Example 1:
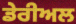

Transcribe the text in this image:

ਡੇਰੀਅਲ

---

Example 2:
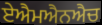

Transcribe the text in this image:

ਏਐਮਐਨਐਚ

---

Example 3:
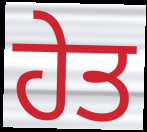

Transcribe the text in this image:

ਹੇਤ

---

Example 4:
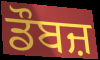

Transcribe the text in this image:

ਡੌਬਜ਼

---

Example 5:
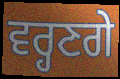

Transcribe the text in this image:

ਵਰ੍ਹਣਗੇ